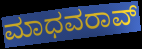
ಮಾಧವರಾವ್